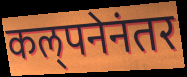
कल्पनेनंतर